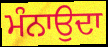
ਮੰਨਾਉਦਾ